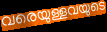
വരെയുള്ളവയുടെ